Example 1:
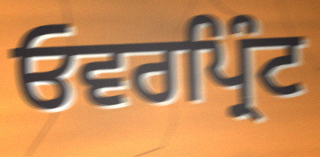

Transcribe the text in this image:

ਓਵਰਪ੍ਰਿੰਟ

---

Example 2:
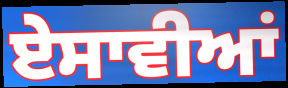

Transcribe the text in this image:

ਏਸਾਵੀਆਂ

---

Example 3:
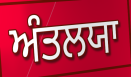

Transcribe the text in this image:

ਅੰਤਲਯਾ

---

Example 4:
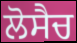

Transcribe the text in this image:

ਲੋਸੈਚ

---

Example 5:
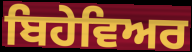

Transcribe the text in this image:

ਬਿਹੇਵਿਅਰ